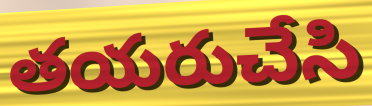
తయరుచేసి